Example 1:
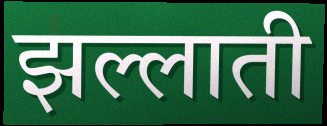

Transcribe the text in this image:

झल्लाती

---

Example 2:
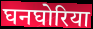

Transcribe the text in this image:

घनघोरिया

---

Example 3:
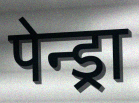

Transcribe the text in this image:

पेन्ड्रा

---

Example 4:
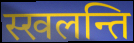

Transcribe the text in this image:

स्खलन्ति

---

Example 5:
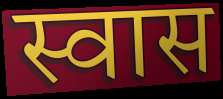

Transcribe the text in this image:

स्वास